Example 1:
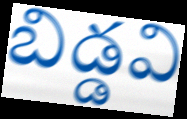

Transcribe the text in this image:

బిడ్డవి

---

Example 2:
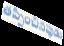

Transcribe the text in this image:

తప్పించినపుడు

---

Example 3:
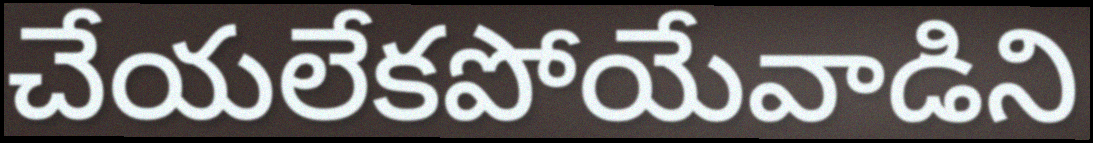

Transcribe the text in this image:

చేయలేకపోయేవాడిని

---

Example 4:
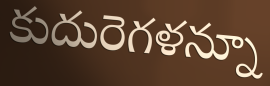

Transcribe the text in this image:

కుదురెగళన్నూ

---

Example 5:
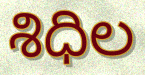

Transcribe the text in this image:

శిధిల